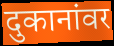
दुकानांवर